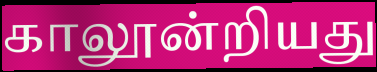
காலூன்றியது